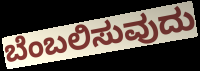
ಬೆಂಬಲಿಸುವುದು